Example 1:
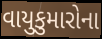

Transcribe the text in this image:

વાયુકુમારોના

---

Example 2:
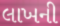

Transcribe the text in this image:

લાખની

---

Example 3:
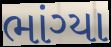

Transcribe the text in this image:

ભાંગ્યા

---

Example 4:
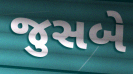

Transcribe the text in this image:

જુસબે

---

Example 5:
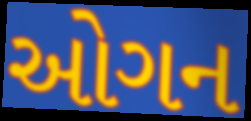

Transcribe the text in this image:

ઓગન